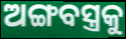
ଅଙ୍ଗବସ୍ତ୍ରକୁ